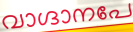
വാഗ്ദാനപേ